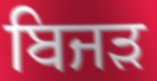
ਬਿਜੜ